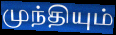
முந்தியும்